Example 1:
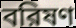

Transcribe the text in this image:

বরিষণ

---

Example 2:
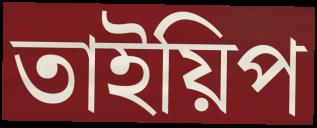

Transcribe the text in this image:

তাইয়িপ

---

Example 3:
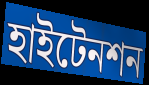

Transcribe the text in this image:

হাইটেনশন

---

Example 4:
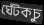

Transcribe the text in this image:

ঘেঁটকচু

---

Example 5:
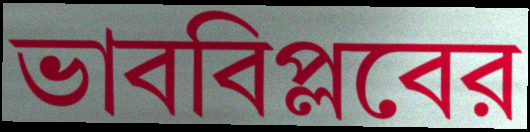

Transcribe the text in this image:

ভাববিপ্লবের